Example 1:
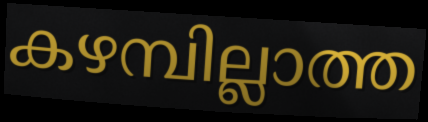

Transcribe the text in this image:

കഴമ്പില്ലാത്ത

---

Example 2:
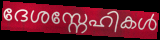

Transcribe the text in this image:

ദേശസ്നേഹികൾ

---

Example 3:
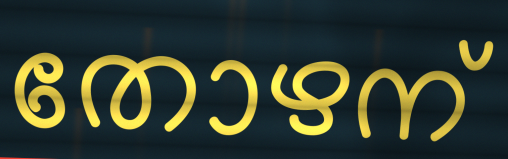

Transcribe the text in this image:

തോഴന്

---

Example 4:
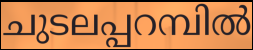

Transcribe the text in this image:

ചുടലപ്പറമ്പിൽ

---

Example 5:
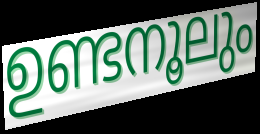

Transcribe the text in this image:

ഉണ്ടനൂലും